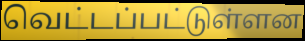
வெட்டப்பட்டுள்ளன